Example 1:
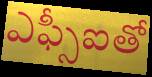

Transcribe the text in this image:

ఎఫ్సీఐతో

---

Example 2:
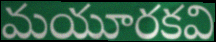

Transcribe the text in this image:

మయూరకవి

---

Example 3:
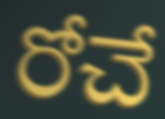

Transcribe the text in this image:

రోచే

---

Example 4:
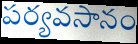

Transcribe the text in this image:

పర్యవసానం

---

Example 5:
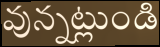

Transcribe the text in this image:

వున్నట్లుండి